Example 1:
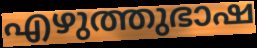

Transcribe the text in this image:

എഴുത്തുഭാഷ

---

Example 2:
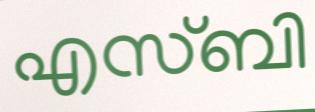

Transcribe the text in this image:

എസ്ബി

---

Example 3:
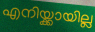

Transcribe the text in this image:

എനിയ്ക്കായില്ല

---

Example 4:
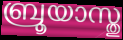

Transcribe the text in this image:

ബ്രൂയാസ്തു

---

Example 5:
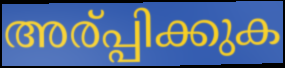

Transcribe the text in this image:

അര്പ്പിക്കുക